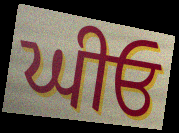
ਘੀਓ